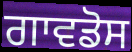
ਗਾਵਡੋਸ